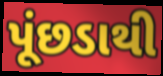
પૂંછડાથી